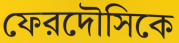
ফেরদৌসিকে